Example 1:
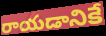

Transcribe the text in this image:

రాయడానికే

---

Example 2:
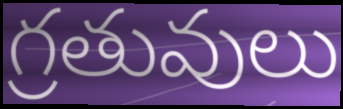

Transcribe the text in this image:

గ్రతువులు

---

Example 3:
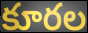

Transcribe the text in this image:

కూరల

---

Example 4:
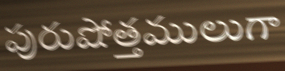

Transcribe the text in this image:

పురుషోత్తములుగా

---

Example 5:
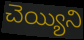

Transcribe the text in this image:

చెయ్యిని